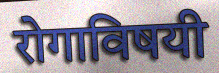
रोगाविषयी